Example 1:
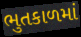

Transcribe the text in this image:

ભુતકાળમાં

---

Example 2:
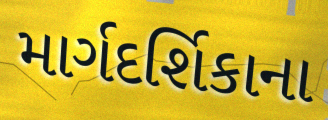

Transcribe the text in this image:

માર્ગદર્શિકાના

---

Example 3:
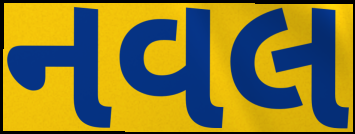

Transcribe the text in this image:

નવલ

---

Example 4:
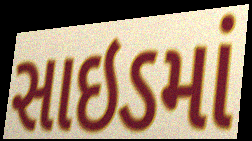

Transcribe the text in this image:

સાઇડમાં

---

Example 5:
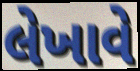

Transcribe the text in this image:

લેખાવે